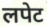
लपेट